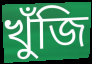
খুঁজি